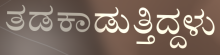
ತಡಕಾಡುತ್ತಿದ್ದಳು